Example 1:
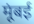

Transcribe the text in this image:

मूंबई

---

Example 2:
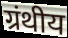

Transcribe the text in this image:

ग्रंथीय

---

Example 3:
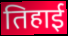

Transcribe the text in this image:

तिहाई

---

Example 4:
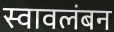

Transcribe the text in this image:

स्वावलंबन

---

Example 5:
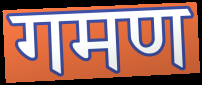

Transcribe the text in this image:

गमण